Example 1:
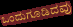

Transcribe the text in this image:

ಒಂದುಗೂಡಿದವು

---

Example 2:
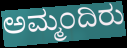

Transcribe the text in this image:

ಅಮ್ಮಂದಿರು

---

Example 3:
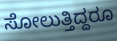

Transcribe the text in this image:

ಸೋಲುತ್ತಿದ್ದರೂ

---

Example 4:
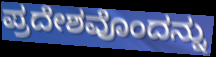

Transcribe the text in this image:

ಪ್ರದೇಶವೊಂದನ್ನು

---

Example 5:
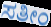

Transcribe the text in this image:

ಸತೀಂ